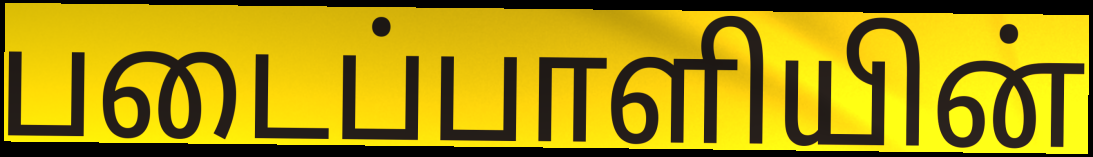
படைப்பாளியின்